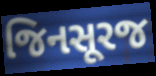
જિનસૂરજ